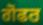
ਗੋਫਰ